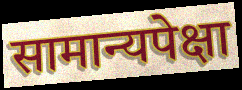
सामान्यपेक्षा